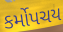
કર્મોપચય